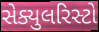
સેક્યુલરિસ્ટો